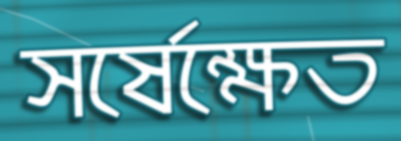
সর্ষেক্ষেত